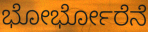
ಭೋರ್ಭೋರೆನೆ